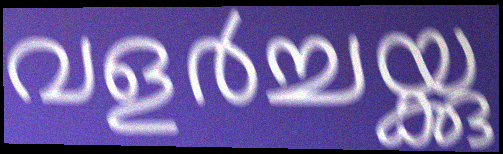
വളർച്ചയ്ക്കു